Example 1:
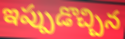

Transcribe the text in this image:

ఇప్పుడొచ్చిన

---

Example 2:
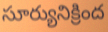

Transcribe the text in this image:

సూర్యునిక్రింద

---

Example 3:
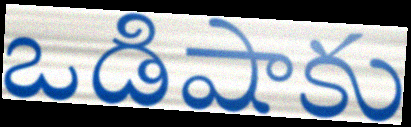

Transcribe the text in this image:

ఒడిషాకు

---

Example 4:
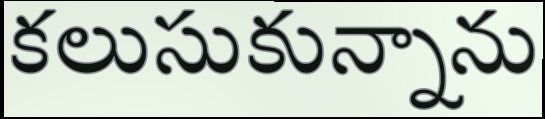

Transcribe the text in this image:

కలుసుకున్నాను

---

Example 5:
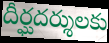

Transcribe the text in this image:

దీర్ఘదర్శులకు